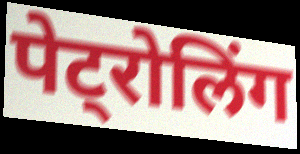
पेट्रोलिंग